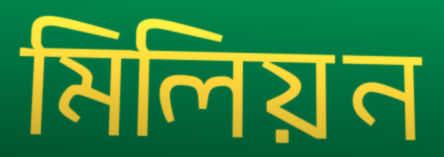
মিলিয়ন